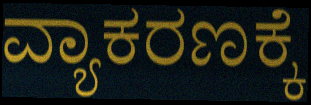
ವ್ಯಾಕರಣಕ್ಕೆ